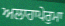
ਅਲਾਹਾਪੇਰੁਮਾ